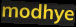
modhye